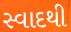
સ્વાદથી